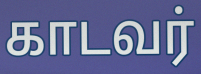
காடவர்